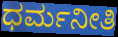
ಧರ್ಮನೀತಿ